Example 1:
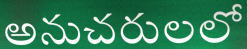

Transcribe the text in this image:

అనుచరులలో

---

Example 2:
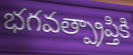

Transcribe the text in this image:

భగవత్ప్రాప్తికి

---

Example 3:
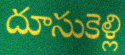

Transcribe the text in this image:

దూసుకెళ్లి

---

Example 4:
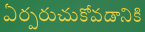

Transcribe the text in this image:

ఏర్పరుచుకోవడానికి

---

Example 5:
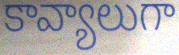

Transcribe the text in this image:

కావ్యాలుగా